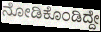
ನೋಡಿಕೊಂಡಿದ್ದೇ